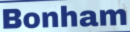
Bonham